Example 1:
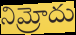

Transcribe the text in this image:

నిమ్రోదు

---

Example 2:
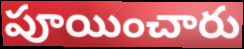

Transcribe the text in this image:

పూయించారు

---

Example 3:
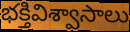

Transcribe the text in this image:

భక్తివిశ్వాసాలు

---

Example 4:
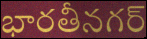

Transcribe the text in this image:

భారతీనగర్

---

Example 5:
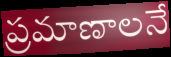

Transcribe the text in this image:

ప్రమాణాలనే